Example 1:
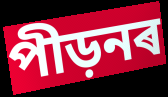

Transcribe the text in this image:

পীড়নৰ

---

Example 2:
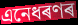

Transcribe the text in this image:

এনেধৰণৰ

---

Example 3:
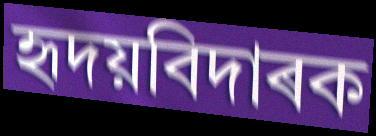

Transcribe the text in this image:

হৃদয়বিদাৰক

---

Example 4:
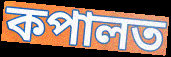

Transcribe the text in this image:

কপালত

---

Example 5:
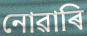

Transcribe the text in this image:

নোৱাৰি